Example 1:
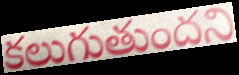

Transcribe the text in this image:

కలుగుతుందని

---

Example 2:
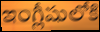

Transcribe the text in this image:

ఇంగ్లీషులోకి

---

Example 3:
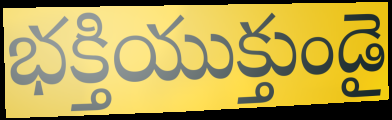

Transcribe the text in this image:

భక్తియుక్తుండై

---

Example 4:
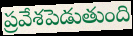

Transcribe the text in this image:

ప్రవేశపెడుతుంది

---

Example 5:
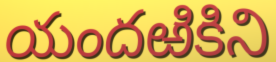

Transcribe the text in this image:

యందఱికిని